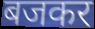
बजकर